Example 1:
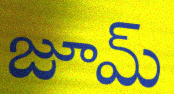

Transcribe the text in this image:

జూమ్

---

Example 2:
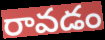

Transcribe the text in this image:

రావడం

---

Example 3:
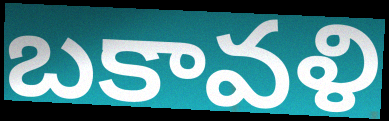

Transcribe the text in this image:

బకావళి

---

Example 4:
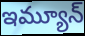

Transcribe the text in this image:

ఇమ్యూన్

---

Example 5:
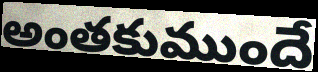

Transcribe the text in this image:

అంతకుముందే